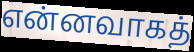
என்னவாகத்